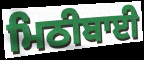
ਮਿਠੀਬਾਈ